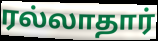
ரல்லாதார்